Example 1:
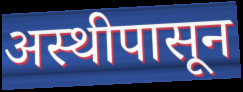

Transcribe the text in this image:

अस्थीपासून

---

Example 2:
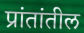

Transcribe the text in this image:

प्रांतांतील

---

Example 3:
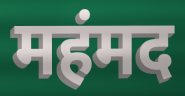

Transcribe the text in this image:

महंमद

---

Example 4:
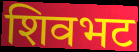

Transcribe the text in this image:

शिवभट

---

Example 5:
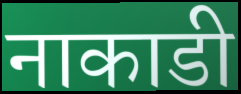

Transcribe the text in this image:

नाकाडी